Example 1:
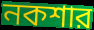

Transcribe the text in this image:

নকশার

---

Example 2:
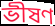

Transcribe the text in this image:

ভীষণ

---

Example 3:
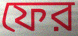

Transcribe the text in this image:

ফের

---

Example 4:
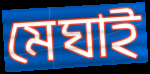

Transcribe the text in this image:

মেঘাই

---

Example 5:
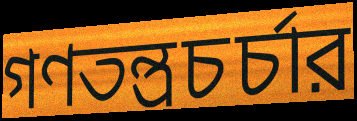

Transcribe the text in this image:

গণতন্ত্রচর্চার